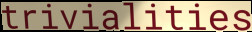
trivialities